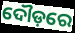
ଦୌଡ଼ରେ